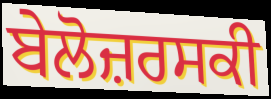
ਬੇਲੋਜ਼ਰਸਕੀ